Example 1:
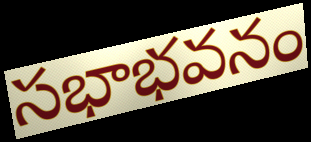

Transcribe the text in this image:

సభాభవనం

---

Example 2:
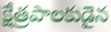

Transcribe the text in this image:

క్షేత్రపాలకుడైన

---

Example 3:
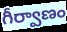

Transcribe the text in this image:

గీర్వాణం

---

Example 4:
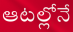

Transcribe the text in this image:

ఆటల్లోనే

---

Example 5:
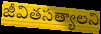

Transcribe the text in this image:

జీవితసత్యాలని